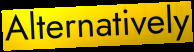
Alternatively